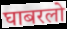
घाबरलो